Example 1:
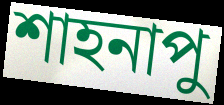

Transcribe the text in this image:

শাহনাপু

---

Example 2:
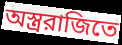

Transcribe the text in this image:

অস্ত্ররাজিতে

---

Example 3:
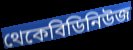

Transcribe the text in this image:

থেকেবিডিনিউজ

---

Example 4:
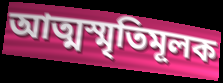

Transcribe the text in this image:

আত্মস্মৃতিমূলক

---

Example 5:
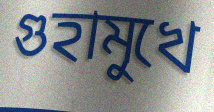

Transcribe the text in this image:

গুহামুখে